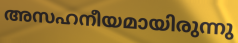
അസഹനീയമായിരുന്നു